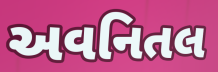
અવનિતલ